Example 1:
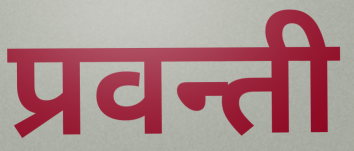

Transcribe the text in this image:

प्रवन्ती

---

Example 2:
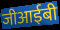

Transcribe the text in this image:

जीआईबी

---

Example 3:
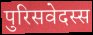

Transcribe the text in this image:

पुरिसवेदस्स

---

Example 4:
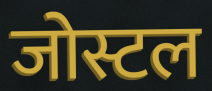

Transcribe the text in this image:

जोस्टल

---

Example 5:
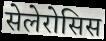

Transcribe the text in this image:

सेलेरोसिस